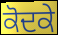
ਕੋਦਕੇ